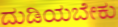
ದುಡಿಯಬೇಕು